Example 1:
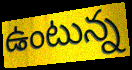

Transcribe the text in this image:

ఉంటున్న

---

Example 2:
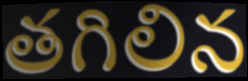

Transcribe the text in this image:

తగిలిన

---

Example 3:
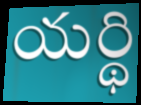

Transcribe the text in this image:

యర్థి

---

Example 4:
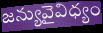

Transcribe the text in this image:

జన్యువైవిధ్యం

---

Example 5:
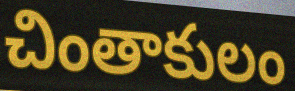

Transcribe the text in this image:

చింతాకులం